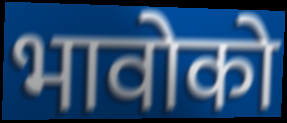
भावोको